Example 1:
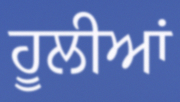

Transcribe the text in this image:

ਹੂਲੀਆਂ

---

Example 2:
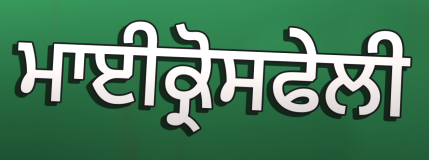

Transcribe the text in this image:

ਮਾਈਕ੍ਰੋਸਫੇਲੀ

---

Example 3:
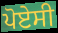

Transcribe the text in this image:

ਪੋਏਸੀ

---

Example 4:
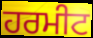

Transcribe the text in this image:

ਹਰਮੀਟ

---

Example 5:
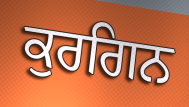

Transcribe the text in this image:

ਕੁਰਗਿਨ